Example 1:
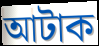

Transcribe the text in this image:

আটাক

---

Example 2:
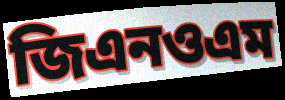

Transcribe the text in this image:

জিএনওএম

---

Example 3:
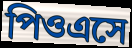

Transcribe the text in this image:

পিওএসে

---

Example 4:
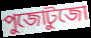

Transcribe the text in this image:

পুজোটুজো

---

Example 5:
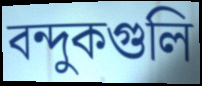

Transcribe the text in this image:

বন্দুকগুলি